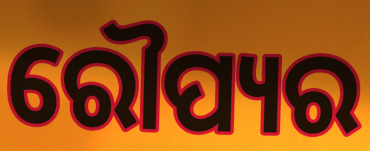
ରୌପ୍ୟର